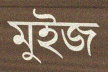
মুইজ